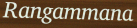
Rangammana